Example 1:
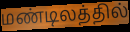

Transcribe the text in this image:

மண்டிலத்தில்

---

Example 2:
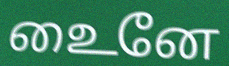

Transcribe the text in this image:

உைனே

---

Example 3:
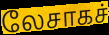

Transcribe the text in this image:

லேசாகச்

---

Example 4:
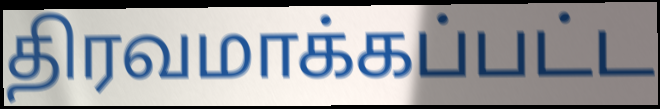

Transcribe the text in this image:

திரவமாக்கப்பட்ட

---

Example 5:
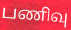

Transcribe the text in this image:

பணிவு